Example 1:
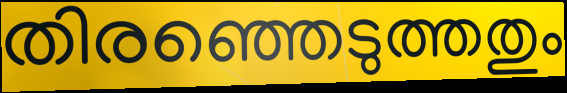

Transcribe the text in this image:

തിരഞ്ഞെടുത്തതും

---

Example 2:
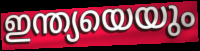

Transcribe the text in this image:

ഇന്ത്യയെയും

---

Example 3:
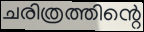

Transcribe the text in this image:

ചരിത്രത്തിന്റെ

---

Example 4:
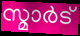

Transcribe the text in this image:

സ്മാർട്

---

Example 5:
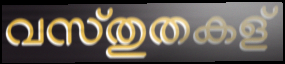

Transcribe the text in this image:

വസ്തുതകള്